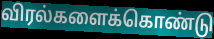
விரல்களைக்கொண்டு